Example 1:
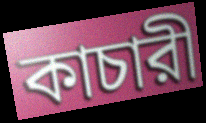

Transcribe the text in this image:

কাচারী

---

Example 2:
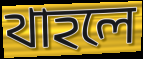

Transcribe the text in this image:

থাহলে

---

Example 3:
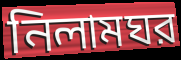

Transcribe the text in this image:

নিলামঘর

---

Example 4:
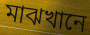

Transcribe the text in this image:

মাঝখানে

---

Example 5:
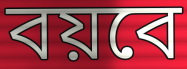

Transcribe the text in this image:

বয়বে